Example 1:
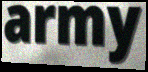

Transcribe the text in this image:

army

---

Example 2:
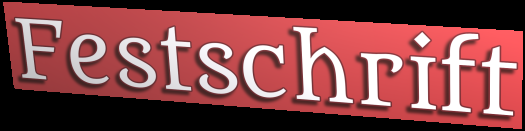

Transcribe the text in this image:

Festschrift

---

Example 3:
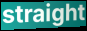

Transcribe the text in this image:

straight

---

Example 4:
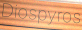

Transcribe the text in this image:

Diospyros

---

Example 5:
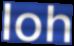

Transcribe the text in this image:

loh